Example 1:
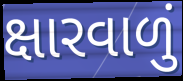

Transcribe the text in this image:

ક્ષારવાળું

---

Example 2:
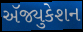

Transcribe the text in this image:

ઍજ્યુકેશન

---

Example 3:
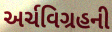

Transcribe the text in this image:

અર્ચવિગ્રહની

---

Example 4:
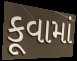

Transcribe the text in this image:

કૂવામાં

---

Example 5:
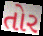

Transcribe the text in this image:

તોર